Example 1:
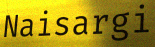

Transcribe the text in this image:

Naisargi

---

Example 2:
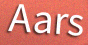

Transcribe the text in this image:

Aars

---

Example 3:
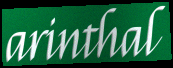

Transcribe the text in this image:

arinthal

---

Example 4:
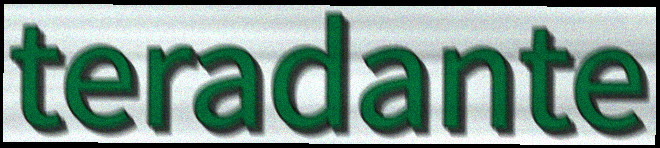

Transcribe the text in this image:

teradante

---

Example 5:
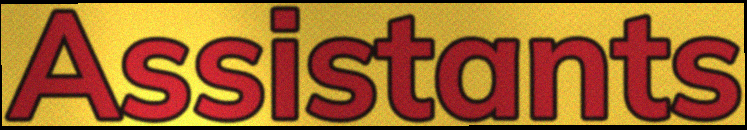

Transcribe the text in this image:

Assistants